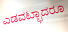
ಎಡವಟ್ಟಾದರೂ